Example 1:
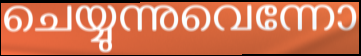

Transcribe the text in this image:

ചെയ്യുന്നുവെന്നോ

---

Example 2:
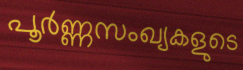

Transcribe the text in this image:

പൂർണ്ണസംഖ്യകളുടെ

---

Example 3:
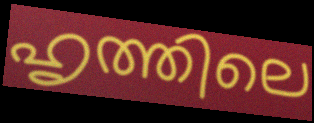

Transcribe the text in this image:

ഹൃത്തിലെ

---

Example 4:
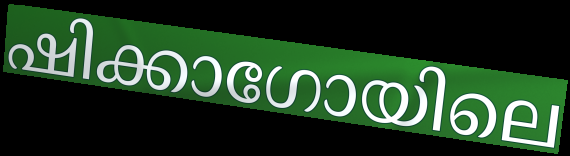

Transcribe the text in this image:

ഷിക്കാഗോയിലെ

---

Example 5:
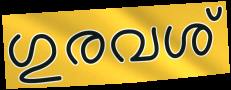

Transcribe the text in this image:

ഗുരവശ്